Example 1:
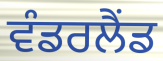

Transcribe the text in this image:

ਵੰਡਰਲੈਂਡ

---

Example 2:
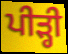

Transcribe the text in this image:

ਪੀੜ੍ਹੀ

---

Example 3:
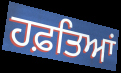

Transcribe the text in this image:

ਹਫ਼ਤਿਆਂ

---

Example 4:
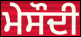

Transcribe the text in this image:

ਮੇਸੌਦੀ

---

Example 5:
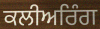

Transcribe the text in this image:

ਕਲੀਅਰਿੰਗ